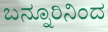
ಬನ್ನೂರಿನಿಂದ